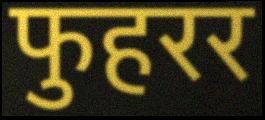
फुहरर